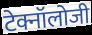
टेक्नॉलोजी